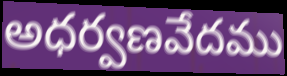
అధర్వణవేదము